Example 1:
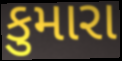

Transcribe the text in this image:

કુમારા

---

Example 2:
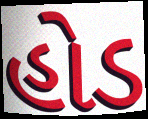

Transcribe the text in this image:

હોડ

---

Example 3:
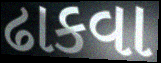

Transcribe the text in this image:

ઢાકવા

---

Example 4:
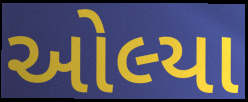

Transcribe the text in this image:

ઓલ્યા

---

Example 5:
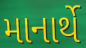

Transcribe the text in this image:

માનાર્થે